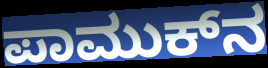
ಪಾಮುಕ್‍ನ